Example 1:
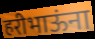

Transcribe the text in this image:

हरीभाऊंना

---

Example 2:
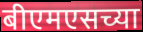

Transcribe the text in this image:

बीएमएसच्या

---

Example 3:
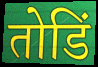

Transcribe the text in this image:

तोडिं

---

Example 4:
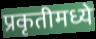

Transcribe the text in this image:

प्रकृतीमध्ये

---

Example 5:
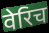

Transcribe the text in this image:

वेरिच